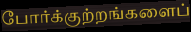
போர்க்குற்றங்களைப்